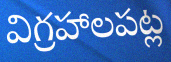
విగ్రహాలపట్ల